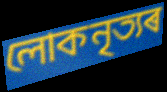
লোকনৃত্যৰ